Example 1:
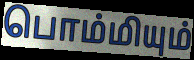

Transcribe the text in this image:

பொம்மியும்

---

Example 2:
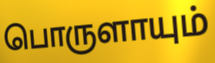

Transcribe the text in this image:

பொருளாயும்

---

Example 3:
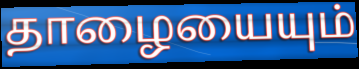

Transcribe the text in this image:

தாழையையும்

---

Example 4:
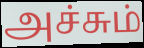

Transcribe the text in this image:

அச்சும்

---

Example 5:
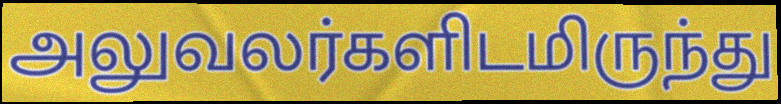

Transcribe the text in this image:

அலுவலர்களிடமிருந்து